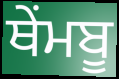
ਥੇਂਮਬੂ